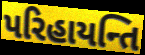
પરિહાયન્તિ